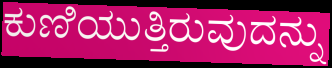
ಕುಣಿಯುತ್ತಿರುವುದನ್ನು